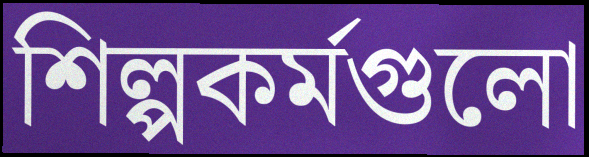
শিল্পকর্মগুলো